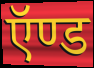
ऍण्ड